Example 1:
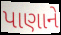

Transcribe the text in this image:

પાણાને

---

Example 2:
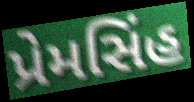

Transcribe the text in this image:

પ્રેમસિંહ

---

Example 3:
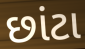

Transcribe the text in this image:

છાંટા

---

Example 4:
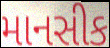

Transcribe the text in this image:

માનસીક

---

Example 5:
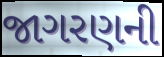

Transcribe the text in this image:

જાગરણની